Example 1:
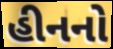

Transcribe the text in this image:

હીનનો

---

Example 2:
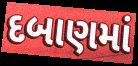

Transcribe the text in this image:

દબાણમાં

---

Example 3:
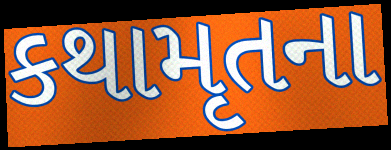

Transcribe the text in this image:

કથામૃતના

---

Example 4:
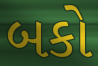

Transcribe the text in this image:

બકો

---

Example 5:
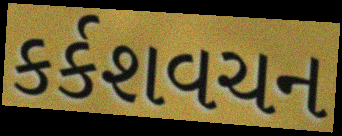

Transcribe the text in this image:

કર્કશવચન